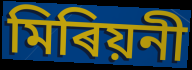
মিৰিয়নী